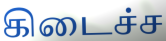
கிடைச்ச